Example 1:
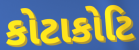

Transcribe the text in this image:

કોટાકોટિ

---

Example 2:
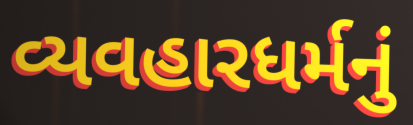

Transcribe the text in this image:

વ્યવહારધર્મનું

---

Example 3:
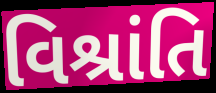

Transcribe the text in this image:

વિશ્રાંતિ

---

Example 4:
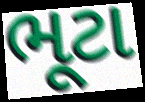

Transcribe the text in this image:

ભૂટા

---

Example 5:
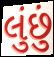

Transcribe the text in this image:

લુંછું